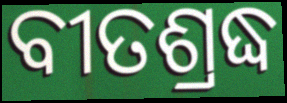
ବୀତଶ୍ରଦ୍ଧ